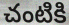
చంటికి